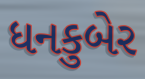
ધનકુબેર